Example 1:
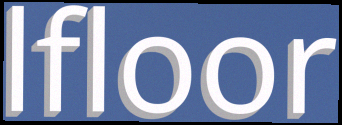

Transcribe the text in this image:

lfloor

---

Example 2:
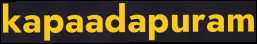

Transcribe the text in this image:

kapaadapuram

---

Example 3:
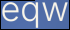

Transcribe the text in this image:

eqw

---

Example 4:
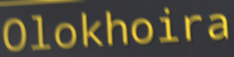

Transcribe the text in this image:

Olokhoira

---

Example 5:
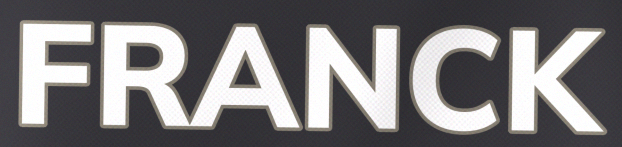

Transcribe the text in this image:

FRANCK